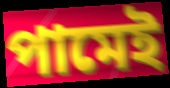
পামেই